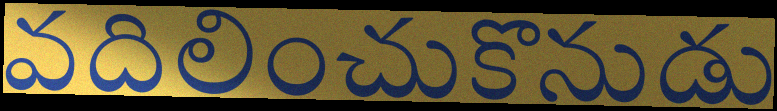
వదిలించుకొనుడు